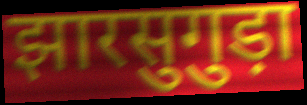
झारसुगुड़ा